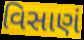
વિસાણં